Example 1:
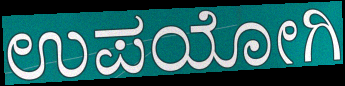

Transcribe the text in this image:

ಉಪಯೋಗಿ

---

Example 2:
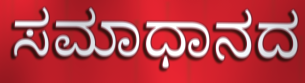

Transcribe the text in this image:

ಸಮಾಧಾನದ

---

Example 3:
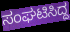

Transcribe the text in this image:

ಸಂಘಟಿಸಿದ್ದ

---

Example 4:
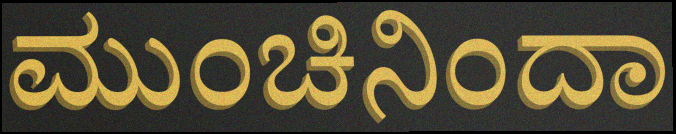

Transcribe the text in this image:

ಮುಂಚಿನಿಂದಾ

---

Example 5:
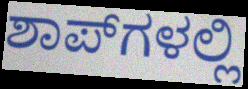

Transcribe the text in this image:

ಶಾಪ್‌ಗಳಲ್ಲಿ